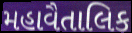
મહાવૈતાલિક